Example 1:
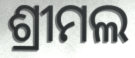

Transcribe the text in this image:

ଶ୍ରୀମଲ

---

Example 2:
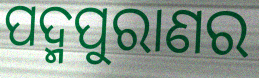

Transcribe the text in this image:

ପଦ୍ମପୁରାଣର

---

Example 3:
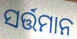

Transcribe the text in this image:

ସର୍ତ୍ତମାନ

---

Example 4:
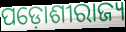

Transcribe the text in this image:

ପଡ଼ୋଶୀରାଜ୍ୟ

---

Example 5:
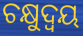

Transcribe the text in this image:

ଚକ୍ଷୁଦ୍ଵୟ